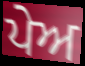
ਪੇਅ